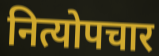
नित्योपचार